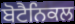
ਬੋਟੈਨਿਕਲ